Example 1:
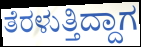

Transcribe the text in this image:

ತೆರಳುತ್ತಿದ್ದಾಗ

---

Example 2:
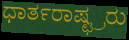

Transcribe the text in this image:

ಧಾರ್ತರಾಷ್ಟ್ರರು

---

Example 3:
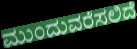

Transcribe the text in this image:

ಮುಂದುವರೆಸಲಿದೆ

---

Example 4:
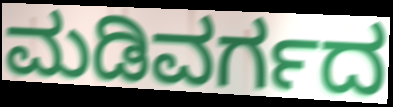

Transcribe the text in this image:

ಮಡಿವರ್ಗದ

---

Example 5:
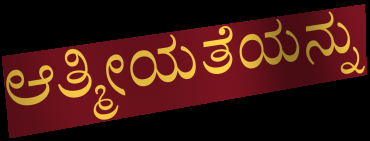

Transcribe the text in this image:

ಆತ್ಮೀಯತೆಯನ್ನು